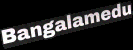
Bangalamedu